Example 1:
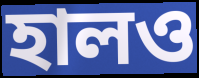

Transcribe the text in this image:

হালও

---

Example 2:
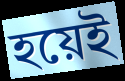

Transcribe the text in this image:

হয়েই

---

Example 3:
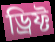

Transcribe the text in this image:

ড্রিফ্ট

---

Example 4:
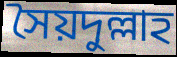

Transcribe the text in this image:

সৈয়দুল্লাহ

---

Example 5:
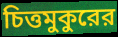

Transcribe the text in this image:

চিত্তমুকুরের